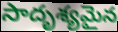
సాదృశ్యమైన